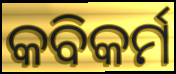
କବିକର୍ମ